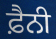
ਫ਼ੈਨੀ